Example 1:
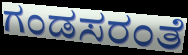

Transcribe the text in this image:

ಗಂಡಸರಂತೆ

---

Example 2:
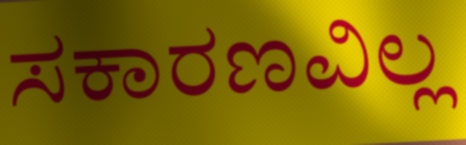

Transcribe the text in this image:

ಸಕಾರಣವಿಲ್ಲ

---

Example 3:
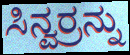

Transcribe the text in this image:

ಸಿನ್ವರ್ರನ್ನು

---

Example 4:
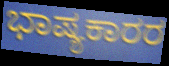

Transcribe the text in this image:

ಭಾಷ್ಯಕಾರರ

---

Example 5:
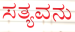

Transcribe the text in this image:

ಸತ್ಯವನು